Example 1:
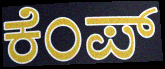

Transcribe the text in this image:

ಕೆಂಪ್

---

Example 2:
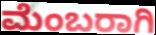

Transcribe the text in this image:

ಮೆಂಬರಾಗಿ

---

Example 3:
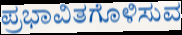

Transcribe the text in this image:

ಪ್ರಭಾವಿತಗೊಳಿಸುವ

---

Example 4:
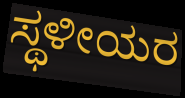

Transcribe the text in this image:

ಸ್ಥಳೀಯರ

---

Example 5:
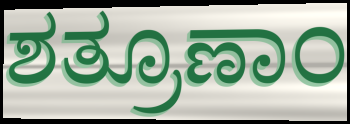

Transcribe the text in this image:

ಶತ್ರೂಣಾಂ